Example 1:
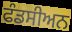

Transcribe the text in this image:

ਫੰਡਸੀਅਨ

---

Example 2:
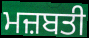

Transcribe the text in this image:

ਮਜ਼ਬਤੀ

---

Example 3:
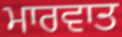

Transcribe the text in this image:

ਮਾਰਵਾਤ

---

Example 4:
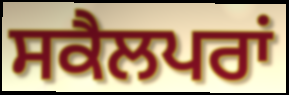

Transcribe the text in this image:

ਸਕੈਲਪਰਾਂ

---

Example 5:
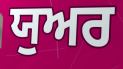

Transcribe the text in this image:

ਯੁਅਰ